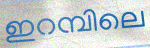
ഇറമ്പിലെ